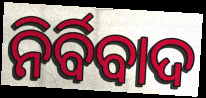
ନିର୍ବିବାଦ